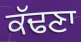
ਕੱਢਣਾ